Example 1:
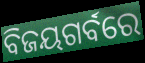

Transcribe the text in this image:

ବିଜୟଗର୍ବରେ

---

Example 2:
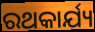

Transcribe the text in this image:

ରଥକାର୍ଯ୍ୟ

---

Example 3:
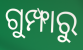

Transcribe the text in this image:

ଗୁମ୍ଫାରୁ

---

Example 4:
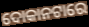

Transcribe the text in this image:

ଦୋକାନଟାରେ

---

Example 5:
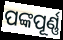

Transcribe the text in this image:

ପଙ୍କପୂର୍ଣ୍ଣ